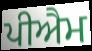
ਪੀਐਮ